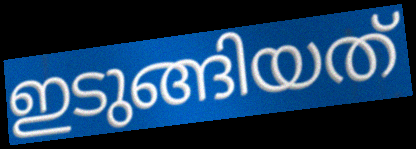
ഇടുങ്ങിയത്